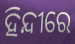
ହିନ୍ଦୀରେ